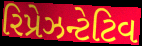
રિપ્રેઝન્ટેટિવ